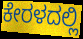
ಕೇರಳದಲ್ಲಿ